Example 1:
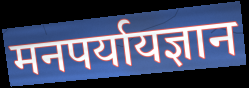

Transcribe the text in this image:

मनपर्यायज्ञान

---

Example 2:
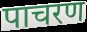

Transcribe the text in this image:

पाचरण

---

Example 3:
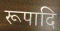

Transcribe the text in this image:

रूपादि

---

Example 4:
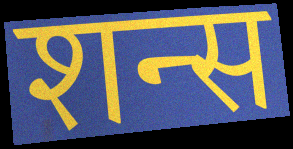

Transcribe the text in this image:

शन्स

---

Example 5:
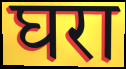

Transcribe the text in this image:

घरा